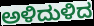
ಅಳಿದುಳಿದ